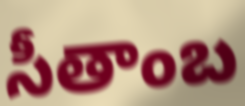
సీతాంబ